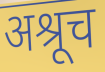
अश्रूच